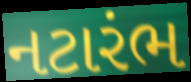
નટારંભ